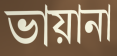
ভায়ানা